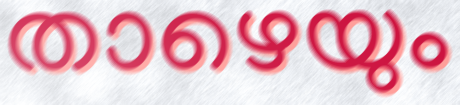
താഴെയും